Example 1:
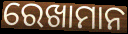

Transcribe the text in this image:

ରେଖାମାନ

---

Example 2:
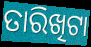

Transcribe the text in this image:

ତାରିଖିଟା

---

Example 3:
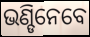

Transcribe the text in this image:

ଭଣ୍ଡିନେବେ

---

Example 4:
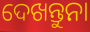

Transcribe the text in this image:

ଦେଖନ୍ତୁନା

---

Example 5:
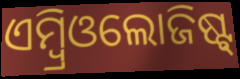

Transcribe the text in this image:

ଏମ୍ବ୍ରିଓଲୋଜିଷ୍ଟ୍